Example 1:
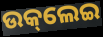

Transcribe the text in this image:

ଉକ୍‌ଲେଇ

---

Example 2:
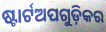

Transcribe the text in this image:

ଷ୍ଟାର୍ଟଅପଗୁଡ଼ିକର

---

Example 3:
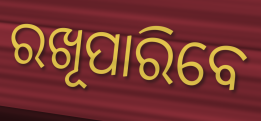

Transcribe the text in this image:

ରଖୂପାରିବେ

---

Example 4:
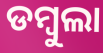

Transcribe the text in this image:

ଡମ୍ୱୁଲା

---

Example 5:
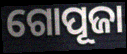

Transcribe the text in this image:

ଗୋପୂଜା